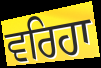
ਵਰਿਹਾ